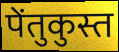
पेंतुकुस्त